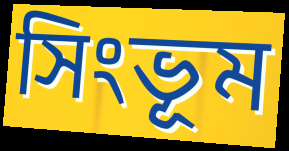
সিংভূম